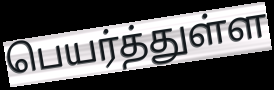
பெயர்த்துள்ள